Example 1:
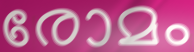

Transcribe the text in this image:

രോമം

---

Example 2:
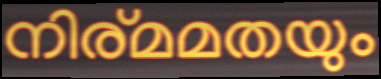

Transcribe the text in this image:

നിര്മമതയും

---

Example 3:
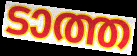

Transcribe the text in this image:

ടാത്ത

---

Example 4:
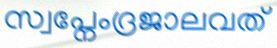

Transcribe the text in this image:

സ്വപ്നേംദ്രജാലവത്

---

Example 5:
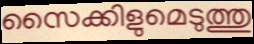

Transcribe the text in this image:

സൈക്കിളുമെടുത്തു